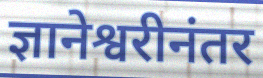
ज्ञानेश्वरीनंतर